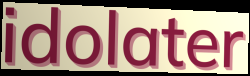
idolater